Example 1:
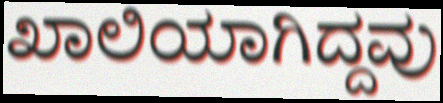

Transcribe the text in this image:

ಖಾಲಿಯಾಗಿದ್ದವು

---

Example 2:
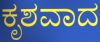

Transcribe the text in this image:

ಕೃಶವಾದ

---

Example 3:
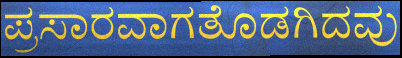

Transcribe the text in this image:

ಪ್ರಸಾರವಾಗತೊಡಗಿದವು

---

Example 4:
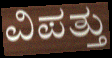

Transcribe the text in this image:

ವಿಪತ್ತು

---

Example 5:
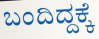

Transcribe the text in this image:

ಬಂದಿದ್ದಕ್ಕೆ